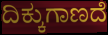
ದಿಕ್ಕುಗಾಣದೆ